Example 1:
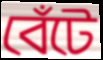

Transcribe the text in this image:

বেঁটে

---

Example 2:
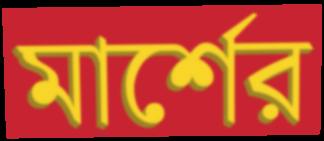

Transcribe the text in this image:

মার্শের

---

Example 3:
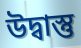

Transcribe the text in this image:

উদ্বাস্তু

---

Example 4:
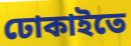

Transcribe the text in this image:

ঢোকাইতে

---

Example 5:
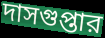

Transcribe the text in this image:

দাসগুপ্তার